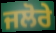
ਜਲੋਰੇ